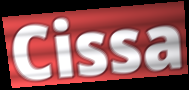
Cissa